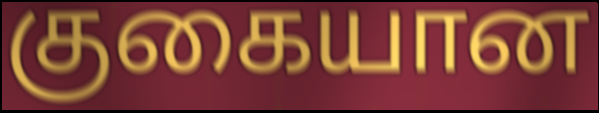
குகையான